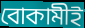
বোকামীই